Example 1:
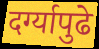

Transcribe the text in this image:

दर्ग्यापुढे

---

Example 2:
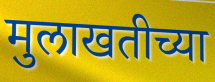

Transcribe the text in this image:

मुलाखतीच्या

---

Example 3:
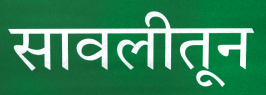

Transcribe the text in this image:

सावलीतून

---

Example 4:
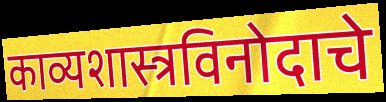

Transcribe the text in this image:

काव्यशास्त्रविनोदाचे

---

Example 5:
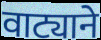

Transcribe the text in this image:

वाट्याने